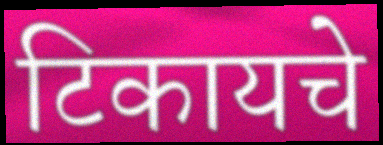
टिकायचे